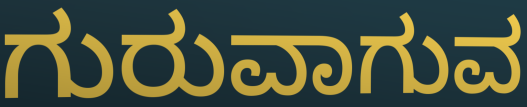
ಗುರುವಾಗುವ